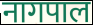
नागपाल